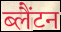
ब्लैंटन